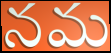
నమ